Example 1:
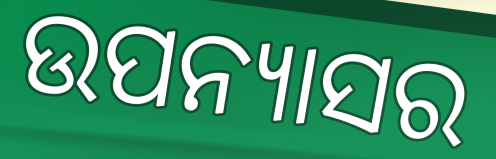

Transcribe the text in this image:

ଉପନ୍ୟାସର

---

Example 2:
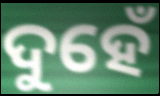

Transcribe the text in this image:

ଦୁହେଁ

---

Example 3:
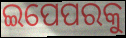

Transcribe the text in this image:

ଇପେପରକୁ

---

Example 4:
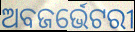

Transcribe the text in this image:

ଅବଜର୍ଭେଟରୀ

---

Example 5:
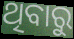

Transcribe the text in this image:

ଥିବାରୁ